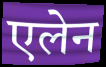
एलेन